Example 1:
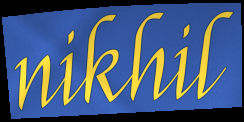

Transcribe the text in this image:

nikhil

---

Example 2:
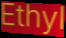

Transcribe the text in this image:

Ethyl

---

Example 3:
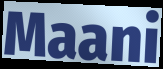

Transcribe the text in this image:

Maani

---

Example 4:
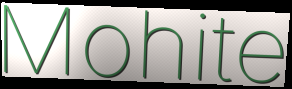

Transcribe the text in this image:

Mohite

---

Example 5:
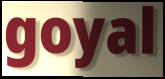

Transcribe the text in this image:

goyal